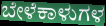
ಬೇಳೆಕಾಳುಗಳ